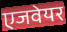
एजवेयर